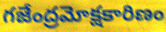
గజేంద్రమోక్షకారిణం